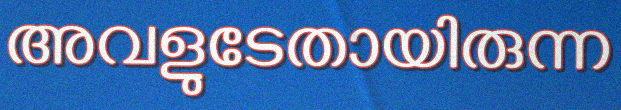
അവളുടേതായിരുന്ന